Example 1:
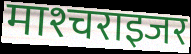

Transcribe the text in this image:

माश्चराइजर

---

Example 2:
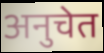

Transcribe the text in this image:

अनुचेत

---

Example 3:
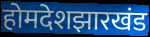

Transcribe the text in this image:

होमदेशझारखंड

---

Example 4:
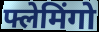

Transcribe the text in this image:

फ्लेमिंगो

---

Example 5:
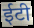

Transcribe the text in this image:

ईटी